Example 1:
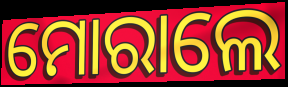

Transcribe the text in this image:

ମୋରାଲେ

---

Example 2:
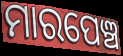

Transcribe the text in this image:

ମାରପେଞ୍ଚ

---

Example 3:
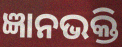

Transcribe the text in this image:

ଜ୍ଞାନଭକ୍ତି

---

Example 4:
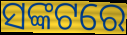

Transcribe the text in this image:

ସଙ୍କଟରେ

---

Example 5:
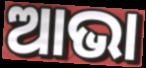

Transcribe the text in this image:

ଆଭା